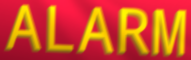
ALARM